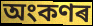
অংকণৰ